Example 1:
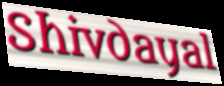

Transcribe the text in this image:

Shivdayal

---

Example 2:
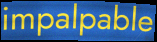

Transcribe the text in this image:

impalpable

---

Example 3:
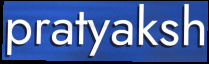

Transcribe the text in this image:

pratyaksh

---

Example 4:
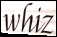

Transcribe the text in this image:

whiz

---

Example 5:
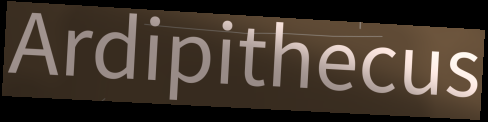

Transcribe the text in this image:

Ardipithecus